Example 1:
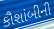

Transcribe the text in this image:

કૌશાંબીની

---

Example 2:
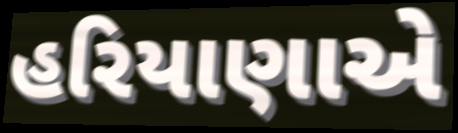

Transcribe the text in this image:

હરિયાણાએ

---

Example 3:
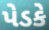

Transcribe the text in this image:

પેડકે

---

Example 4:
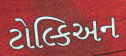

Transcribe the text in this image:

ટોલ્કિઅન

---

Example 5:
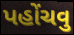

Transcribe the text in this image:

પહોંચવુ